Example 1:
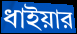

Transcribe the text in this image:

ধাইয়ার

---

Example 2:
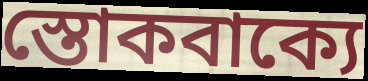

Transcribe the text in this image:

স্তোকবাক্যে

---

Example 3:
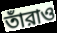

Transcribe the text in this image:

তাঁরাও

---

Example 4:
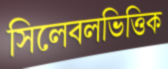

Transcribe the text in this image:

সিলেবলভিত্তিক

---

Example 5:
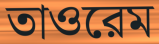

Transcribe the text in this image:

তাওরেম